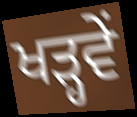
ਖੜ੍ਹਵੇਂ